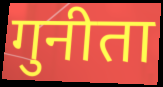
गुनीता